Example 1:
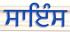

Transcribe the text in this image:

ਸਾਇੰਸ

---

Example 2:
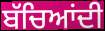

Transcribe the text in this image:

ਬੱਚਿਆਂਦੀ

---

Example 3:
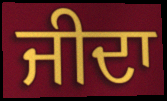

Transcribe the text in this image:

ਜੀਦਾ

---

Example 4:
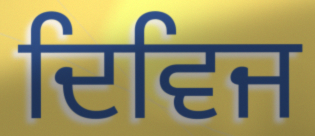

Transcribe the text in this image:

ਦਿਵਿਜ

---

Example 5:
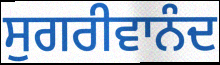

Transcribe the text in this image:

ਸੁਗਰੀਵਾਨੰਦ